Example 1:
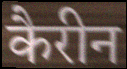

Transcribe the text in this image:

कैरीन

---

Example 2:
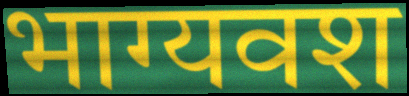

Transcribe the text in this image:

भाग्यवश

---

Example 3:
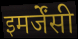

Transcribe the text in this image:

इमर्जेंसी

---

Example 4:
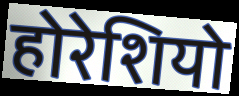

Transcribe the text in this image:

होरेशियो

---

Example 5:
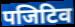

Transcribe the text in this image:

पजिटिव